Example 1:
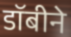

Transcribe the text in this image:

डॉबीने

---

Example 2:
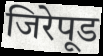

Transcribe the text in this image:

जिरेपूड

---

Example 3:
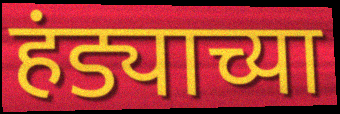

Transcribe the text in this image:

हंड्याच्या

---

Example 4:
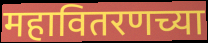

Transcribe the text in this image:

महावितरणच्या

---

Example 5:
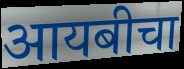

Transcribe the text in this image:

आयबीचा